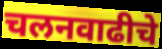
चलनवाढीचे